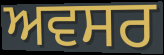
ਅਵਸਰ